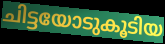
ചിട്ടയോടുകൂടിയ